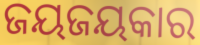
ଜୟଜୟକାର